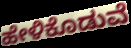
ಹೇಳಿಕೊಡುವೆ